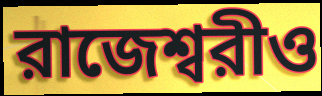
রাজেশ্বরীও